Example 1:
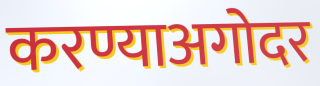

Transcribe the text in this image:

करण्याअगोदर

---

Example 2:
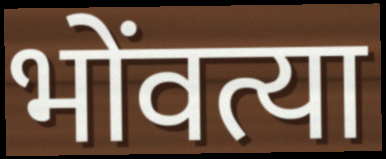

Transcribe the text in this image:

भोंवत्या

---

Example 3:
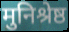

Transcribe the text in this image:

मुनिश्रेष्ठ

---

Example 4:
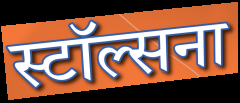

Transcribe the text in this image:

स्टॉल्सना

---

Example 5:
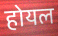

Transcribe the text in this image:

होयल